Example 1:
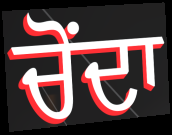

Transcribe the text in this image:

ਚੋਂਦਾ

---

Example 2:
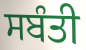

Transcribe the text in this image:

ਸਬੰਤੀ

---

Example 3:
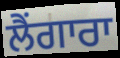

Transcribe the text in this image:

ਲੈਂਗਾਰਾ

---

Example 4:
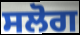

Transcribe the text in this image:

ਸਲੋਗ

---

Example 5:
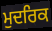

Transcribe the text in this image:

ਮੁਦਰਿਕ